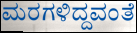
ಮರಗಳಿದ್ದವಂತೆ